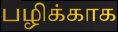
பழிக்காக